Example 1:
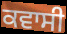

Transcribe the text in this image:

ਕਵਾਸੀ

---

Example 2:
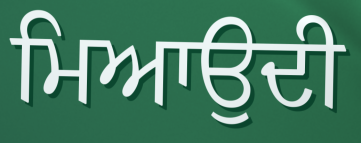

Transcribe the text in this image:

ਮਿਆਉਦੀ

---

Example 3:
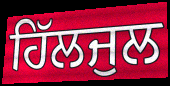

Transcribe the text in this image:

ਹਿੱਲਜੁਲ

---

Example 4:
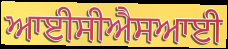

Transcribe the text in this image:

ਆਈਸੀਐਸਆਈ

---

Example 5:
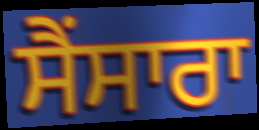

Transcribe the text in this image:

ਸੈਂਸਾਰਾ